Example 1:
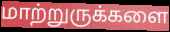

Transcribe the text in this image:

மாற்றுருக்களை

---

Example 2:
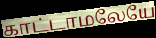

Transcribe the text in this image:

காட்டாமலேயே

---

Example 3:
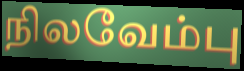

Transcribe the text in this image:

நிலவேம்பு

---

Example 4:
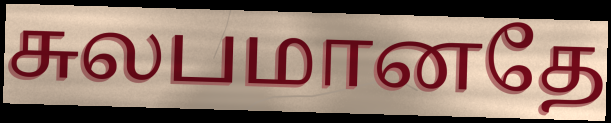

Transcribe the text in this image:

சுலபமானதே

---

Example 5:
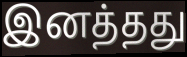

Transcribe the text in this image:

இனத்தது